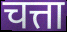
चत्ता